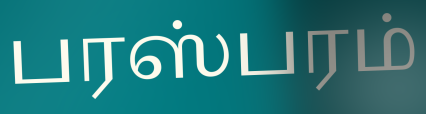
பரஸ்பரம்